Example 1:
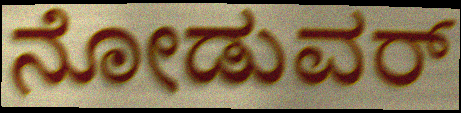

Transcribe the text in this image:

ನೋಡುವರ್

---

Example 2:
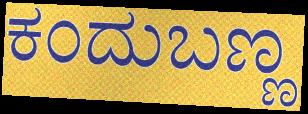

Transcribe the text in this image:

ಕಂದುಬಣ್ಣ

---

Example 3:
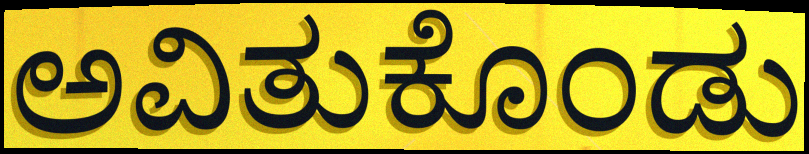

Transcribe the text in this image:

ಅವಿತುಕೊಂಡು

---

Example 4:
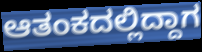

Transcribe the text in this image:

ಆತಂಕದಲ್ಲಿದ್ದಾಗ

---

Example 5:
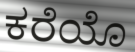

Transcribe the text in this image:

ಕರೆಯೊ